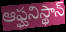
ఆఫ్ఘనిస్థాన్